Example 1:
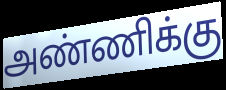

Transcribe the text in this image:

அண்ணிக்கு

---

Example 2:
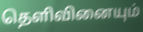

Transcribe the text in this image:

தெளிவினையும்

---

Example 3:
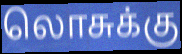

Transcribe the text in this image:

லொசுக்கு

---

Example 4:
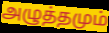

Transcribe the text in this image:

அழுத்தமும்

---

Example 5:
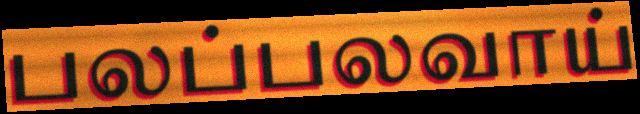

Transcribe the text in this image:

பலப்பலவாய்